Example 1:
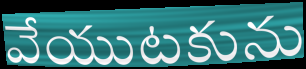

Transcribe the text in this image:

వేయుటకును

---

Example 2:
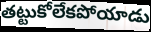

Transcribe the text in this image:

తట్టుకోలేకపోయాడు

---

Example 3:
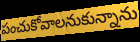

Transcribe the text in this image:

పంచుకోవాలనుకున్నాను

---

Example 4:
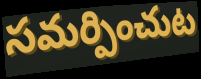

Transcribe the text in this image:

సమర్పించుట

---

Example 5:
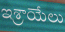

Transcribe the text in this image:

ఇశ్రాయేలు